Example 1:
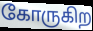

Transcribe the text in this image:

கோருகிற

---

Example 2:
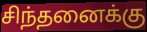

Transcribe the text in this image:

சிந்தனைக்கு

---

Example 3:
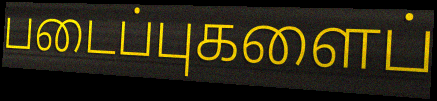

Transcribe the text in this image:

படைப்புகளைப்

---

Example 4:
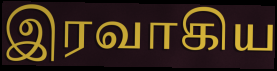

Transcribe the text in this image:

இரவாகிய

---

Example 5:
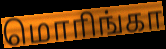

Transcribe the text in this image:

மொரிங்கா